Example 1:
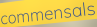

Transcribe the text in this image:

commensals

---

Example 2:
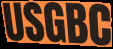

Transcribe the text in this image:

USGBC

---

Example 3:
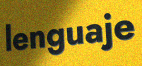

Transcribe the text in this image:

lenguaje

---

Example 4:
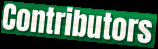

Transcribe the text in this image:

Contributors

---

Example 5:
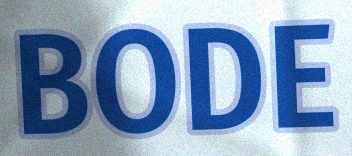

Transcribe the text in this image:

BODE